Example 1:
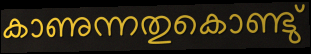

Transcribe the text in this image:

കാണുന്നതുകൊണ്ടു്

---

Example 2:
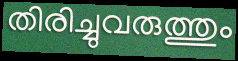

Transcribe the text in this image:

തിരിച്ചുവരുത്തും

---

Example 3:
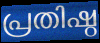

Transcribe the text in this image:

പ്രതിഷ്ഠ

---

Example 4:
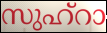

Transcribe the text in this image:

സുഹ്റാ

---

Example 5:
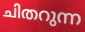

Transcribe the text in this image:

ചിതറുന്ന